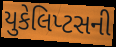
યુકેલિપ્ટસની